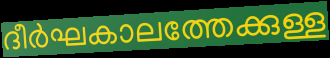
ദീർഘകാലത്തേക്കുള്ള